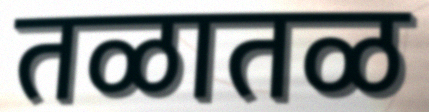
तळातळ